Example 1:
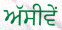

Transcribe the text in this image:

ਅੱਸੀਵੇਂ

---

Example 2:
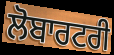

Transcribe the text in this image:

ਲੋਬਾਰਟਰੀ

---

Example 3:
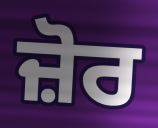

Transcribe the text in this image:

ਜ਼ੋਰ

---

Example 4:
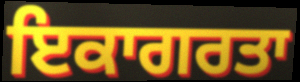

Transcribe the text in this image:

ਇਕਾਗਰਤਾ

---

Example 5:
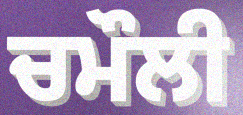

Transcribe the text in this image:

ਚਮੌਲੀ